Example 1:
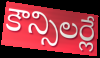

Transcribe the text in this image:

కౌన్సిలర్లే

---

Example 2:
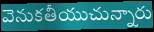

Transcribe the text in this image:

వెనుకతీయుచున్నారు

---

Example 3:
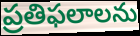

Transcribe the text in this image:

ప్రతిఫలాలను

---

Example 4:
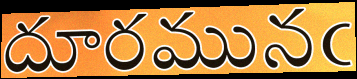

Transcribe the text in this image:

దూరమునఁ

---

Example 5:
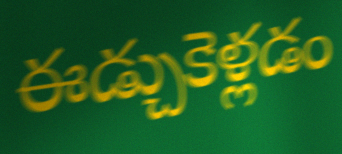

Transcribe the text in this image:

ఈడ్చుకెళ్లడం